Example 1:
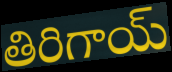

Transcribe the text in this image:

తిరిగాయ్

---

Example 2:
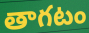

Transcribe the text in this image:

తాగటం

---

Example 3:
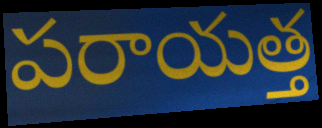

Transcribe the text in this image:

పరాయత్త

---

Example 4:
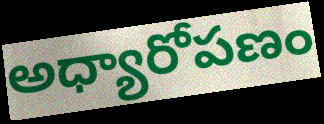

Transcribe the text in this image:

అధ్యారోపణం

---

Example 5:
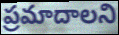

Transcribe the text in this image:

ప్రమాదాలని